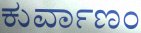
ಕುರ್ವಾಣಂ